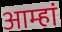
आम्हां